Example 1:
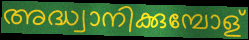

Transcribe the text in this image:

അദ്ധ്വാനിക്കുമ്പോള്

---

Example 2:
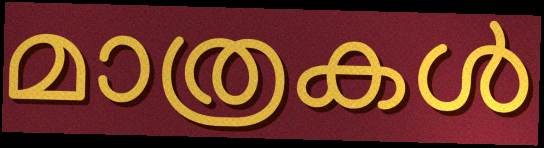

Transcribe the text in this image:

മാത്രകൾ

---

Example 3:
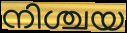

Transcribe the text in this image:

നിശ്ചയ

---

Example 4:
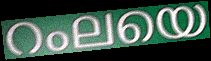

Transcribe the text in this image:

റംലയെ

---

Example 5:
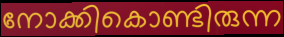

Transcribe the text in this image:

നോക്കികൊണ്ടിരുന്ന